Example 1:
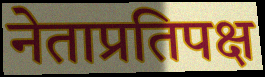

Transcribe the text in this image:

नेताप्रतिपक्ष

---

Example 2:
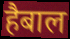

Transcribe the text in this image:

हैबाल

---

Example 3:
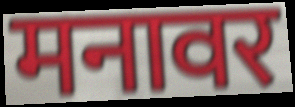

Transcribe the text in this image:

मनावर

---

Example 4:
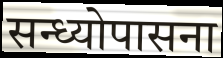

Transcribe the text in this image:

सन्ध्योपासना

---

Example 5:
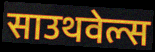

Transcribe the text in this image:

साउथवेल्स